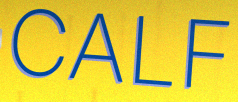
CALF